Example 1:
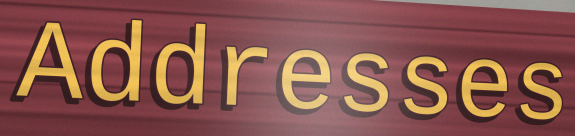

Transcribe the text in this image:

Addresses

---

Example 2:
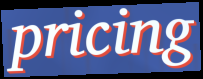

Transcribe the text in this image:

pricing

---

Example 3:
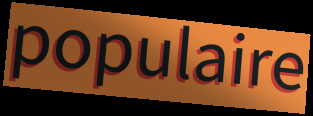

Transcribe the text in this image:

populaire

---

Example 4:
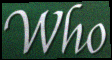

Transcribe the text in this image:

Who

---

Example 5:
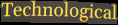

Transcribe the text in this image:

Technological